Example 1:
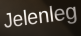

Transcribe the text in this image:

Jelenleg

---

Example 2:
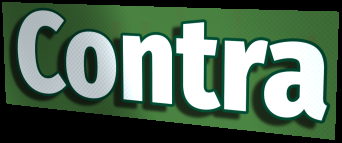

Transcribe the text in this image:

Contra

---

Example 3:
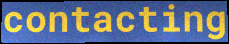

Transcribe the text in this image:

contacting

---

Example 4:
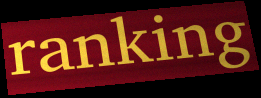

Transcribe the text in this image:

ranking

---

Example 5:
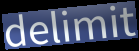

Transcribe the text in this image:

delimit